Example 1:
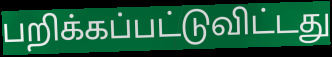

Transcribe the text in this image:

பறிக்கப்பட்டுவிட்டது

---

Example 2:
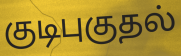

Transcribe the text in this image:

குடிபுகுதல்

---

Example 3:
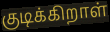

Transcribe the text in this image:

குடிக்கிறாள்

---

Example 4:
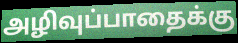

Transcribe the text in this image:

அழிவுப்பாதைக்கு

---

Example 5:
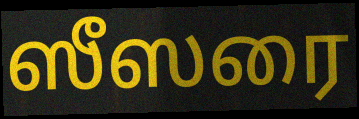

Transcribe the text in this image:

ஸீஸரை